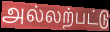
அல்லற்பட்டு